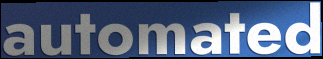
automated